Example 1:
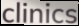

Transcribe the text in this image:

clinics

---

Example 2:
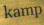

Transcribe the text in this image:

kamp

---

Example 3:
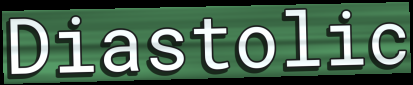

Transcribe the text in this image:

Diastolic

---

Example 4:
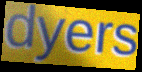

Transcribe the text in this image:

dyers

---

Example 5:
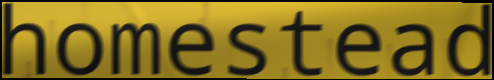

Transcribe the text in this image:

homestead